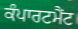
ਕੰਪਾਰਟਮੈਂਟ